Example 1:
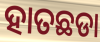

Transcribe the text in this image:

ହାତଛଡା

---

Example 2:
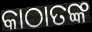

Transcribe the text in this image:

କାଠାତଙ୍କ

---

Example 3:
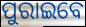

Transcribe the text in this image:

ପୁରାଇବେ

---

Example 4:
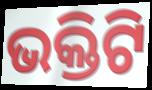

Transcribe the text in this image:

ଭକ୍ତିଟି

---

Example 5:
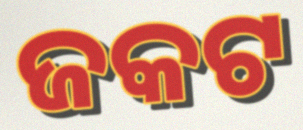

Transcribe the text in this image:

ଜକଟ